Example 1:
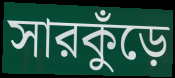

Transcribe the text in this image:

সারকুঁড়ে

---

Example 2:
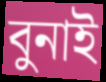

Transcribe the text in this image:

বুনাই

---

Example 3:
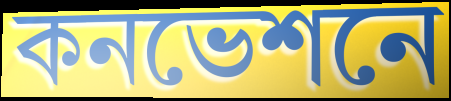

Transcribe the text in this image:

কনভেশনে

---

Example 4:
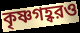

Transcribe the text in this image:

কৃষ্ণগহ্বরও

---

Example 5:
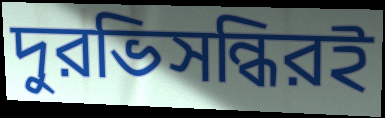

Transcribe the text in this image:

দুরভিসন্ধিরই